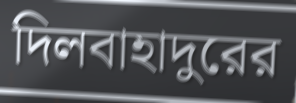
দিলবাহাদুরের